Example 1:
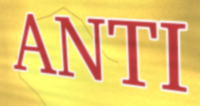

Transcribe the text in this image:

ANTI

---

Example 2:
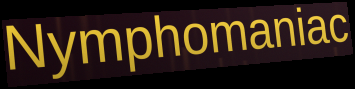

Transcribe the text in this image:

Nymphomaniac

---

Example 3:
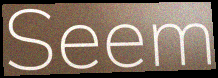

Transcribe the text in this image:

Seem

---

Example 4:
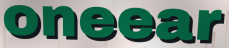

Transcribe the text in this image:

oneear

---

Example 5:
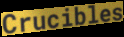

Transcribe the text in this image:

Crucibles